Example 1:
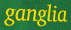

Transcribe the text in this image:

ganglia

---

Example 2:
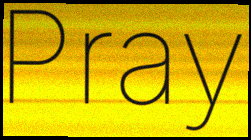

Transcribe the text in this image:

Pray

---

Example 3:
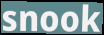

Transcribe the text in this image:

snook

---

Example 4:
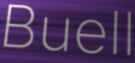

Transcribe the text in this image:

Buell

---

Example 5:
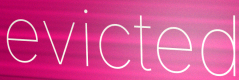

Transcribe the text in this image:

evicted